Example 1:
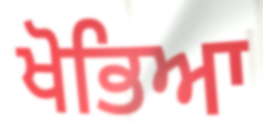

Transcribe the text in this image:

ਖੋਭਿਆ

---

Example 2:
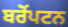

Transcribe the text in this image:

ਬਰੋਂਪਟਨ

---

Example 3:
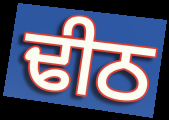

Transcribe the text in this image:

ਢੀਠ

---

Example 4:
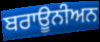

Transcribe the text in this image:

ਬਰਾਊਨੀਅਨ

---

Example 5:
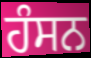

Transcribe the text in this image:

ਹੰਸਨ